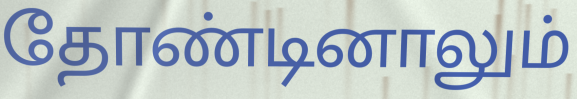
தோண்டினாலும்